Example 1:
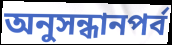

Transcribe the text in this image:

অনুসন্ধানপর্ব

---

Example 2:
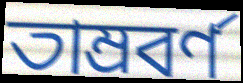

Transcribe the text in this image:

তাম্রবর্ণ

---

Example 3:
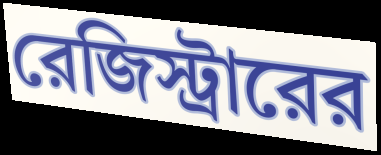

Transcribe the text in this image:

রেজিস্ট্রারের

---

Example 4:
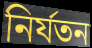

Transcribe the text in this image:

নির্যতন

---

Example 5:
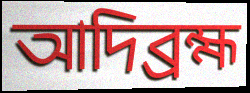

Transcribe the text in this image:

আদিব্রহ্ম